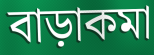
বাড়াকমা